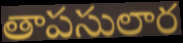
తాపసులార